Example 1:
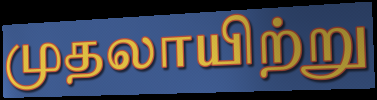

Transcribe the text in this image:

முதலாயிற்று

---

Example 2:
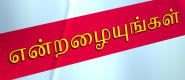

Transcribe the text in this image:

என்றழையுங்கள்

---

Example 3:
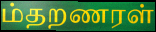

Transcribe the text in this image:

ம்தறணரள்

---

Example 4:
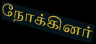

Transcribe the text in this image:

நோக்கினர்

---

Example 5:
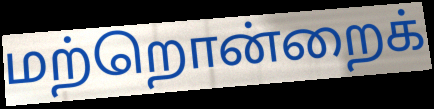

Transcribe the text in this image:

மற்றொன்றைக்